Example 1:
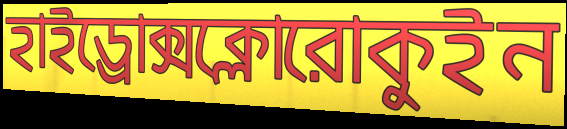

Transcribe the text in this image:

হাইড্রোক্সক্লোরোকুইন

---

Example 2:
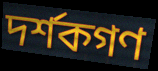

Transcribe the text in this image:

দর্শকগণ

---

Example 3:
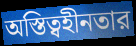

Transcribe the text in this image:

অস্তিত্বহীনতার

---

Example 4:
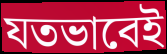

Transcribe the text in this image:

যতভাবেই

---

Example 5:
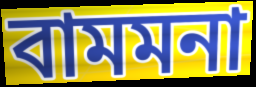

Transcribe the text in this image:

বামমনা